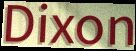
Dixon